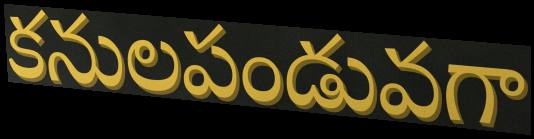
కనులపండువగా